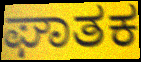
ಘಾತಕ